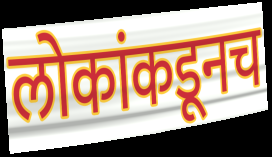
लोकांकडूनच